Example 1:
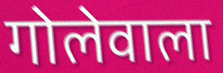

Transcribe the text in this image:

गोलेवाला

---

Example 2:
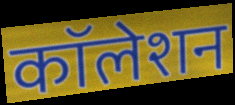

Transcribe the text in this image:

कॉलेशन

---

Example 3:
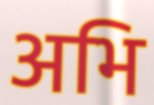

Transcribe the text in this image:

अभि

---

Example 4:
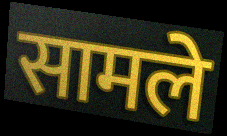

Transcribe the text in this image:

सामले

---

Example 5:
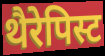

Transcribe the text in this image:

थैरेपिस्ट